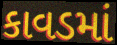
કાવડમાં